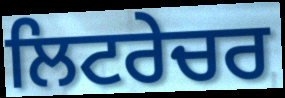
ਲਿਟਰੇਚਰ